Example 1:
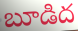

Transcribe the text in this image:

బూడిద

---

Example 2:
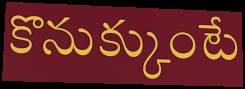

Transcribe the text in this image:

కొనుక్కుంటే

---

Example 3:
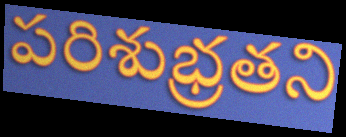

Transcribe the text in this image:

పరిశుభ్రతని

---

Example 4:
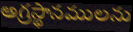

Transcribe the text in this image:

అగ్రస్థానములను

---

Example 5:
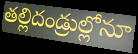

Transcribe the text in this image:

తల్లిదండ్రుల్లోనూ